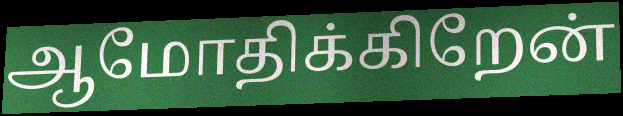
ஆமோதிக்கிறேன்